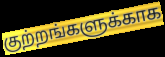
குற்றங்களுக்காக